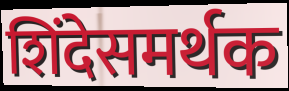
शिंदेसमर्थक